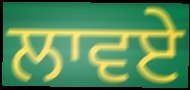
ਲਾਵਏ